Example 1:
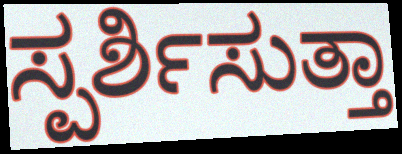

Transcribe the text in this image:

ಸ್ಪರ್ಶಿಸುತ್ತಾ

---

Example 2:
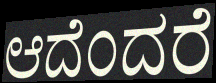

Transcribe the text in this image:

ಆದೆಂದರೆ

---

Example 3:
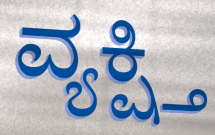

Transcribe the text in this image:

ವ್ಯಕ್ಷ್ತಿ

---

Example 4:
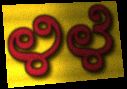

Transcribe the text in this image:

ಳಿಳೆ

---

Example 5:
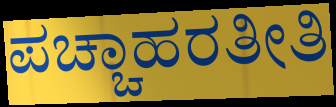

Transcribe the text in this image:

ಪಚ್ಚಾಹರತೀತಿ